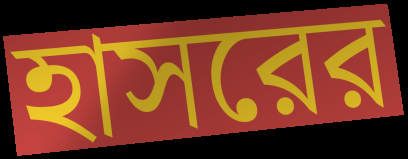
হাসরের